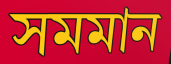
সমমান